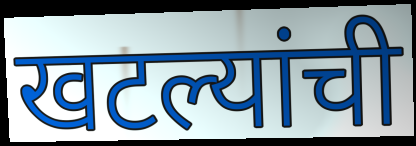
खटल्यांची